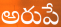
అరుపే